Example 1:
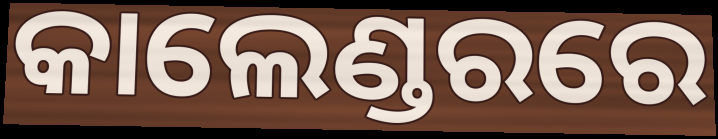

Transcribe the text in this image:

କାଲେଣ୍ଡରରେ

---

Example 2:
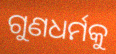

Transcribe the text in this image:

ଗୁଣଧର୍ମକୁ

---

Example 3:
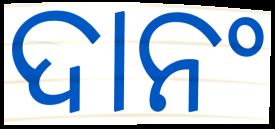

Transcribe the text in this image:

ଦାନଂ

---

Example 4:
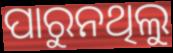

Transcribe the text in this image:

ପାରୁନଥିଲୁ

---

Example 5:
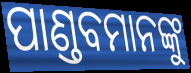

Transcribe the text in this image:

ପାଣ୍ଡବମାନଙ୍କୁ